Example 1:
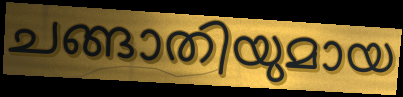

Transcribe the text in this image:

ചങ്ങാതിയുമായ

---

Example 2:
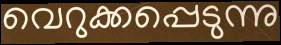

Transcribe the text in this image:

വെറുക്കപ്പെടുന്നു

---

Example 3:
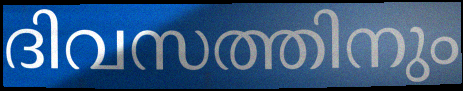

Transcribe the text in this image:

ദിവസത്തിനും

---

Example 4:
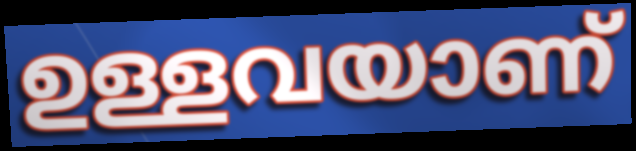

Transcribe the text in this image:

ഉള്ളവയാണ്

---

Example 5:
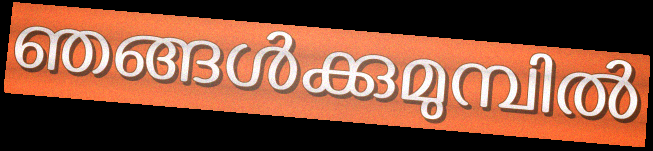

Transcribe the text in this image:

ഞങ്ങൾക്കുമുമ്പിൽ